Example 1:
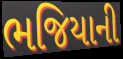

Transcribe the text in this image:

ભજિયાની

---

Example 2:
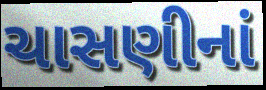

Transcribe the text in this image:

ચાસણીનાં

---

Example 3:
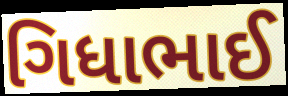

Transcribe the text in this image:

ગિધાભાઈ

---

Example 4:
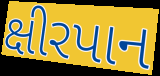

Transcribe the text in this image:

ક્ષીરપાન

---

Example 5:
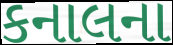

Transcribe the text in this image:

કનાલના